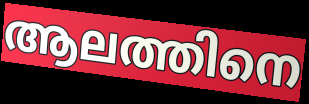
ആലത്തിനെ